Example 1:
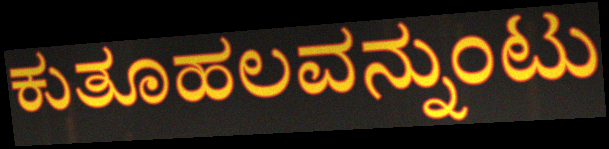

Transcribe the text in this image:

ಕುತೂಹಲವನ್ನುಂಟು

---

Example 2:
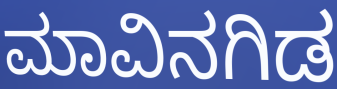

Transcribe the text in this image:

ಮಾವಿನಗಿಡ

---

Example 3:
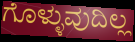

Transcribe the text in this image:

ಗೊಳ್ಳುವುದಿಲ್ಲ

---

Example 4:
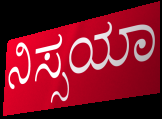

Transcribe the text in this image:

ನಿಸ್ಸಯಾ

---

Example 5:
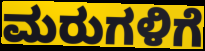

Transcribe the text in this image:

ಮರುಗಳಿಗೆ